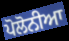
ਪੋਲੋਨੀਆ